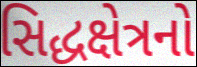
સિદ્ધક્ષેત્રનો